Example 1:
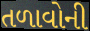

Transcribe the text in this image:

તળાવોની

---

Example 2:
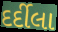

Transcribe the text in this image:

દર્દીલા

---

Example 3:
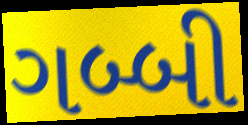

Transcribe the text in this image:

ગબ્બી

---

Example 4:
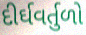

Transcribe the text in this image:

દીર્ઘવર્તુળો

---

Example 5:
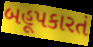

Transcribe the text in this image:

બહૂપકારતં